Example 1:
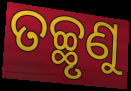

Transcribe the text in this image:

ତଚ୍ଛୃଣୁ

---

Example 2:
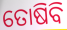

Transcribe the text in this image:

ତୋଷିବି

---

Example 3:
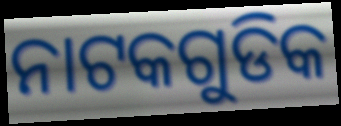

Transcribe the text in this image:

ନାଟକଗୁଡିକ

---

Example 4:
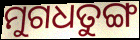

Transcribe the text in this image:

ମୁଗଧତୁଙ୍ଗ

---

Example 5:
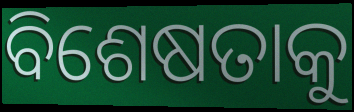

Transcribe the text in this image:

ବିଶେଷତାକୁ